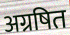
अग्रषित